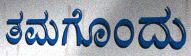
ತಮಗೊಂದು